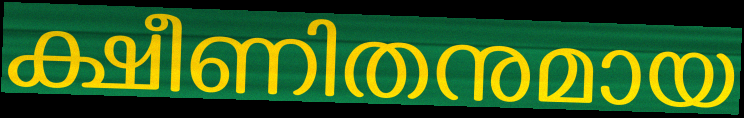
ക്ഷീണിതനുമായ